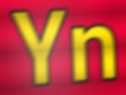
Yn